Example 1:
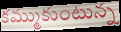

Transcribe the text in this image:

కమ్ముకుంటున్న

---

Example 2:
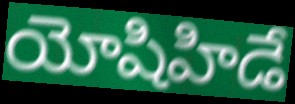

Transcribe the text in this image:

యోషిహిడే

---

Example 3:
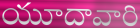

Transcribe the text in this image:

యూదావారి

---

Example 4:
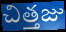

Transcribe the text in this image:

చిత్తజు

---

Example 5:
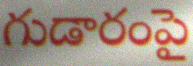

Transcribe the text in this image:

గుడారంపై